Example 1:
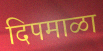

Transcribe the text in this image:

दिपमाळा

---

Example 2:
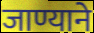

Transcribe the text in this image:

जाण्याने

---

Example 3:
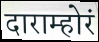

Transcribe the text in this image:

दाराम्होरं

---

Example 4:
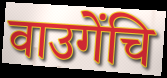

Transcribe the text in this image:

वाउगेंचि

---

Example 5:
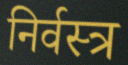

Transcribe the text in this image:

निर्वस्त्र